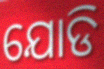
ଯୋଡି